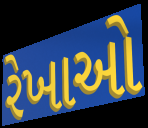
રેખાઓ